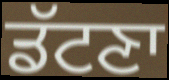
ਡੱਟਣਾ